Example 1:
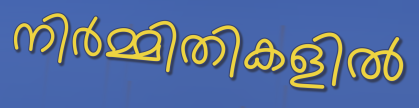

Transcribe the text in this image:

നിർമ്മിതികളിൽ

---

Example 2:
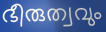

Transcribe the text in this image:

ഭീരുത്വവും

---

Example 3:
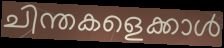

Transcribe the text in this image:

ചിന്തകളെക്കാൾ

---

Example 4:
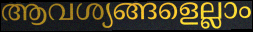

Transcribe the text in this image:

ആവശ്യങ്ങളെല്ലാം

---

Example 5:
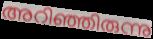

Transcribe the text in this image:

അറിഞ്ഞിരുന്നു